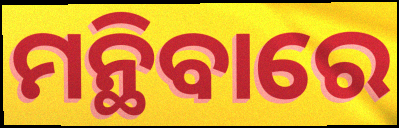
ମନ୍ଥିବାରେ